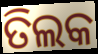
ତିଲକ